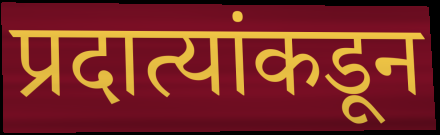
प्रदात्यांकडून